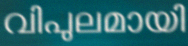
വിപുലമായി